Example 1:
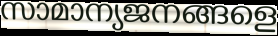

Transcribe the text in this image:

സാമാന്യജനങ്ങളെ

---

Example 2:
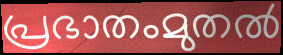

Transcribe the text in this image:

പ്രഭാതംമുതൽ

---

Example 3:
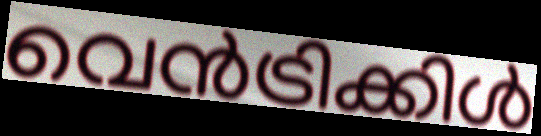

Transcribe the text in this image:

വെൻട്രിക്കിൾ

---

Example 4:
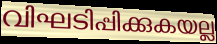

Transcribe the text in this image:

വിഘടിപ്പിക്കുകയല്ല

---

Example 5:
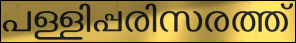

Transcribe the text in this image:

പള്ളിപ്പരിസരത്ത്